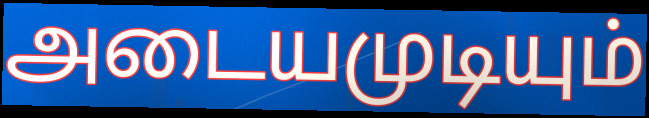
அடையமுடியும்